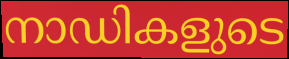
നാഡികളുടെ